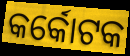
କର୍କୋଟକ